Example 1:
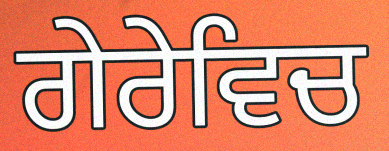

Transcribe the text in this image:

ਗੇਰੇਵਿਚ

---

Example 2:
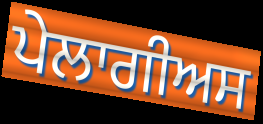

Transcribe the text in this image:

ਪੇਲਾਗੀਅਸ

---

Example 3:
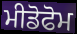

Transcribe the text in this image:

ਮੀਡੋਫੋਮ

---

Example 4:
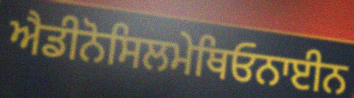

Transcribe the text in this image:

ਐਡੀਨੋਸਿਲਮੇਥਿਓਨਾਈਨ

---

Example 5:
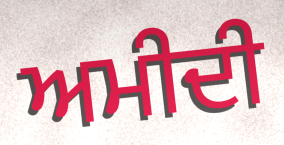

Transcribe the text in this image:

ਅਮੀਦੀ